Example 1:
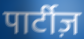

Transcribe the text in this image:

पार्टीज़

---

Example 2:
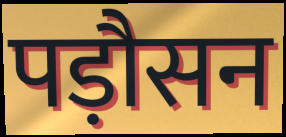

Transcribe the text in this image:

पड़ौसन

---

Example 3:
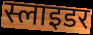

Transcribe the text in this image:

स्लाइडर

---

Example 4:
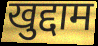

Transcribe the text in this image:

खुद्दाम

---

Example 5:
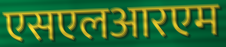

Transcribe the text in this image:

एसएलआरएम